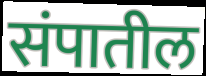
संपातील